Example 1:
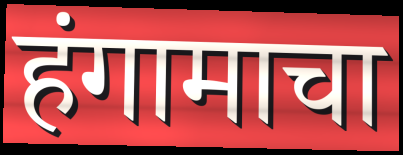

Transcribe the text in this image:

हंगामाचा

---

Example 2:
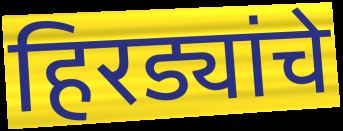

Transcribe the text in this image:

हिरड्यांचे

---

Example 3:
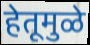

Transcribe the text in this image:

हेतूमुळे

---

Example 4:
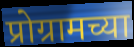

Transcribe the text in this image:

प्रोग्रामच्या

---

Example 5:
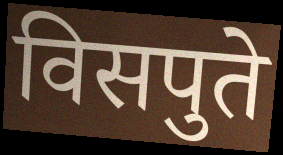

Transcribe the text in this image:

विसपुते